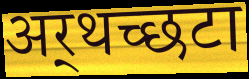
अर्थच्छटा